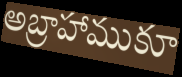
అబ్రాహాముకూ